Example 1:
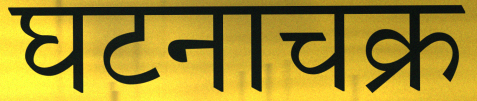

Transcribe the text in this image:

घटनाचक्र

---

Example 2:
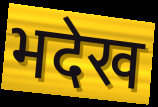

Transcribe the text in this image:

भदेख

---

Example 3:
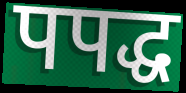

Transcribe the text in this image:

पपद्ध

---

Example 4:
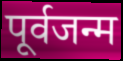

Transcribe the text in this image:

पूर्वजन्म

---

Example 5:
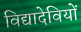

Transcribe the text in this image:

विद्यादेवियों